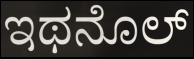
ಇಥನೊಲ್